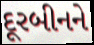
દૂરબીનને